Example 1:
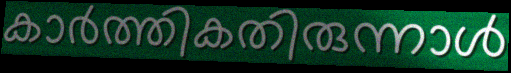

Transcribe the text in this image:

കാർത്തികതിരുന്നാൾ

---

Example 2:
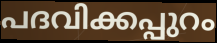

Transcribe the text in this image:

പദവിക്കപ്പുറം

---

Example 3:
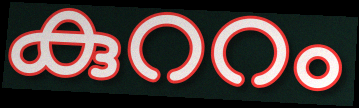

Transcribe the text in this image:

കുററം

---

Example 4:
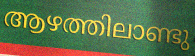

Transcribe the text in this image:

ആഴത്തിലാണ്ടു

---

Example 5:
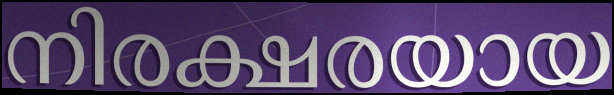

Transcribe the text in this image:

നിരക്ഷരയായ